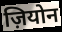
ज़ियोन